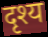
दृश्य